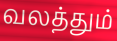
வலத்தும்